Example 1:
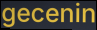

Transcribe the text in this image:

gecenin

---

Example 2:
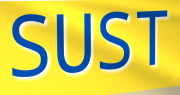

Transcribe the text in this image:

SUST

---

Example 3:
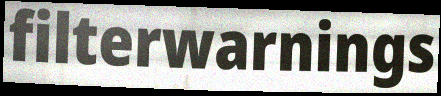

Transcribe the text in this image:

filterwarnings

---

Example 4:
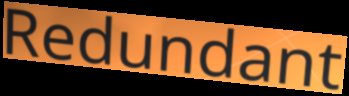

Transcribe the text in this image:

Redundant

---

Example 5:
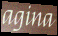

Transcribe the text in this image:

agina